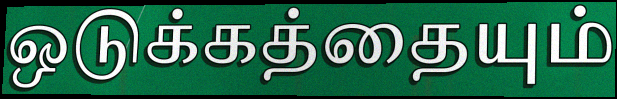
ஒடுக்கத்தையும்